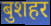
बुशहर